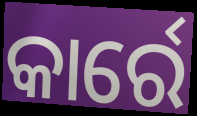
କାର୍ରେ